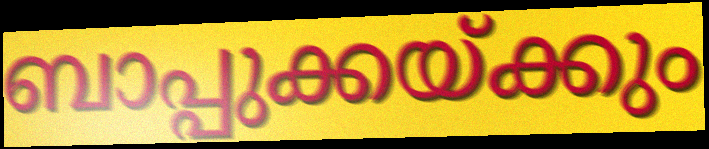
ബാപ്പുക്കയ്ക്കും